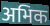
अभिक